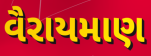
વૈરાયમાણ